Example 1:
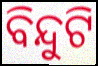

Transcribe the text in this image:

ବିନ୍ଦୁଟି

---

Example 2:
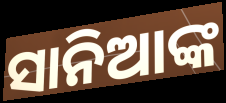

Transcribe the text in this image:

ସାନିଆଙ୍କ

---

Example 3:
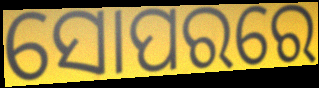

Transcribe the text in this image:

ସୋପରରେ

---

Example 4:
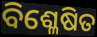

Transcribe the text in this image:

ବିଶ୍ଳେଷିତ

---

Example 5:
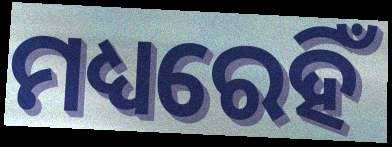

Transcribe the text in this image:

ମଧ୍ୟରେହିଁ